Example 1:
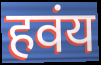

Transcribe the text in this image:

हवंय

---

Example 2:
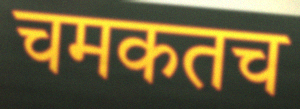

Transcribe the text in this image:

चमकतच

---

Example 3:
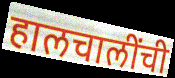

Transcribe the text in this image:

हालचालींची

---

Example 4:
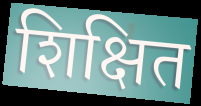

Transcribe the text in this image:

शिक्षित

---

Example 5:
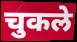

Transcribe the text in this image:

चुकले